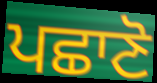
ਪਛਾਣੋ